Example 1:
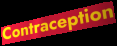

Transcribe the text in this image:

Contraception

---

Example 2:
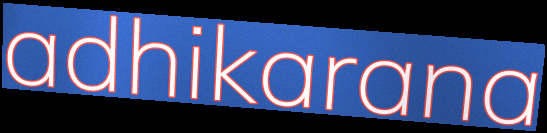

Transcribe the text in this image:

adhikarana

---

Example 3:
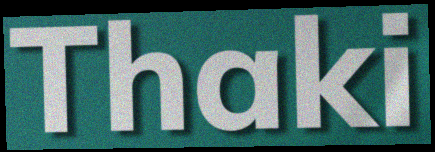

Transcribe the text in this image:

Thaki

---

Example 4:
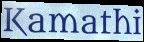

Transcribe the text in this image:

Kamathi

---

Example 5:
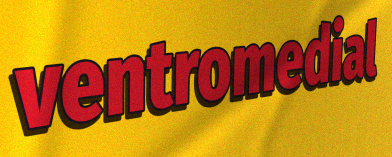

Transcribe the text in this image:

ventromedial